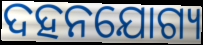
ଦହନଯୋଗ୍ୟ